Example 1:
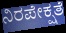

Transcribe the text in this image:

ನಿರಪೇಕ್ಷತೆ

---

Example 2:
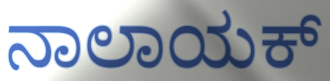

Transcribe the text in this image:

ನಾಲಾಯಕ್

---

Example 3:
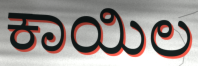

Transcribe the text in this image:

ಕಾಯಿಲ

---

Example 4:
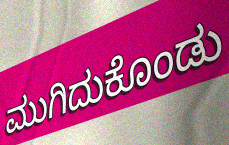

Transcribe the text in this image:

ಮುಗಿದುಕೊಂಡು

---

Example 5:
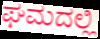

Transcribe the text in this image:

ಘಮದಲ್ಲಿ